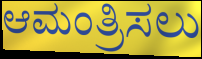
ಆಮಂತ್ರಿಸಲು